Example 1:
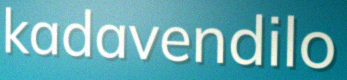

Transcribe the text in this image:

kadavendilo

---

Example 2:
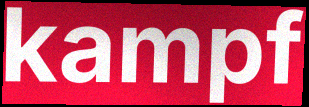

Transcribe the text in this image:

kampf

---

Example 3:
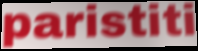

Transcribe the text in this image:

paristiti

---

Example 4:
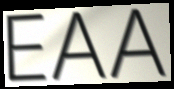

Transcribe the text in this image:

EAA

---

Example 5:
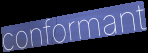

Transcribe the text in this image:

conformant